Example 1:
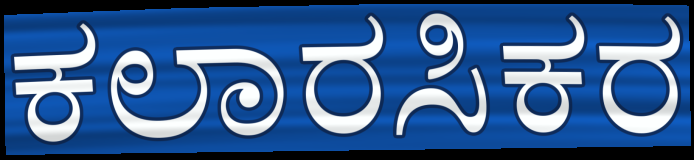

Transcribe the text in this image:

ಕಲಾರಸಿಕರ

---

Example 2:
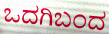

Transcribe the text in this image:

ಒದಗಿಬಂದ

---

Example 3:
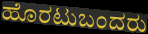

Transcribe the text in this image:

ಹೊರಟುಬಂದರು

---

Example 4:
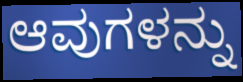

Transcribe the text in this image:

ಆವುಗಳನ್ನು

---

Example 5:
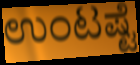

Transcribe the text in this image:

ಉಂಟಷ್ಟೆ